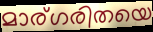
മാര്ഗരിതയെ